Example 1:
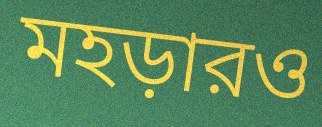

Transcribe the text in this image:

মহড়ারও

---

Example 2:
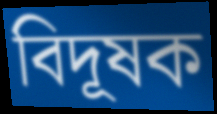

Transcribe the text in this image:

বিদূষক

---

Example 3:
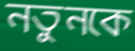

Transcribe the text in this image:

নতুনকে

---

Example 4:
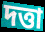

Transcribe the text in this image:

দত্তা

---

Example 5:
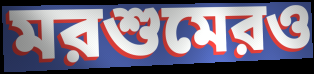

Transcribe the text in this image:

মরশুমেরও